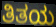
ತಿತಯ